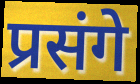
प्रसंगे